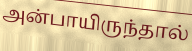
அன்பாயிருந்தால்